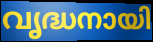
വൃദ്ധനായി